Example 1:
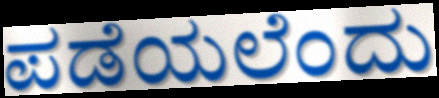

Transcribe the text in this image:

ಪಡೆಯಲೆಂದು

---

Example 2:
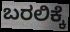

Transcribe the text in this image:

ಬರಲಿಕ್ಕೆ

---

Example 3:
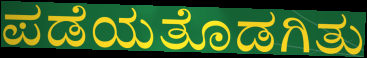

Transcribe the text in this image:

ಪಡೆಯತೊಡಗಿತು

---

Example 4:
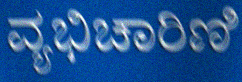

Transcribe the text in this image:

ವ್ಯಭಿಚಾರಿಣಿ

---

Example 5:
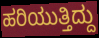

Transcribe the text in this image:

ಹರಿಯುತ್ತಿದ್ದು